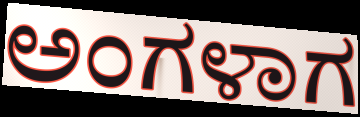
ಅಂಗಳಾಗ